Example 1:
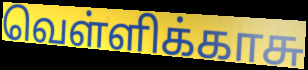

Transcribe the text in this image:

வெள்ளிக்காசு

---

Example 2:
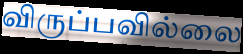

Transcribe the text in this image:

விருப்பவில்லை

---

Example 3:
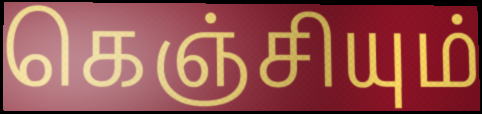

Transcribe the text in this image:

கெஞ்சியும்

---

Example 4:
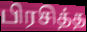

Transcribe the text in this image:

பிரசித்த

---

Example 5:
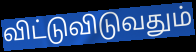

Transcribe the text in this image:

விட்டுவிடுவதும்